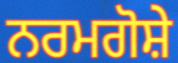
ਨਰਮਗੋਸ਼ੇ